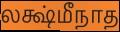
லக்ஷ்மீநாத